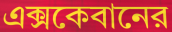
এক্সকেবানের